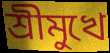
শ্রীমুখে